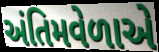
અંતિમવેળાએ